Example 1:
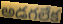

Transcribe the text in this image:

అడగలేక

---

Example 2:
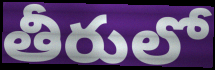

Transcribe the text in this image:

తీరులో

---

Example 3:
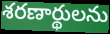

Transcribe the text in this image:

శరణార్థులను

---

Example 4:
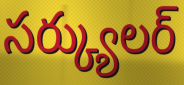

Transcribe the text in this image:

సర్క్యులర్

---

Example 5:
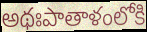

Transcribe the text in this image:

అథఃపాతాళంలోకి